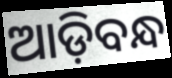
ଆଡ଼ିବନ୍ଧ